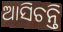
ଆସିଚନ୍ତି